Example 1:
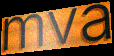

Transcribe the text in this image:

mva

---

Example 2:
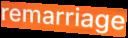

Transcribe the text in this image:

remarriage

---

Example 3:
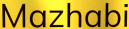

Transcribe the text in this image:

Mazhabi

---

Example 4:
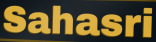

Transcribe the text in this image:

Sahasri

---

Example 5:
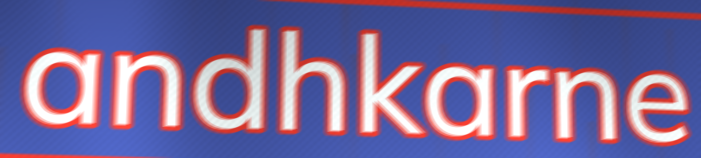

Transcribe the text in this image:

andhkarne